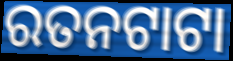
ରତନଟାଟା